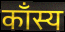
काँस्य